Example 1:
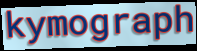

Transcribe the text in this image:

kymograph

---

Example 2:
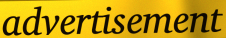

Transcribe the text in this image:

advertisement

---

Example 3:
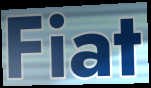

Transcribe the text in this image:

Fiat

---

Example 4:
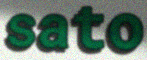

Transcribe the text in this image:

sato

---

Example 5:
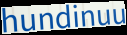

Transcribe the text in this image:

hundinuu